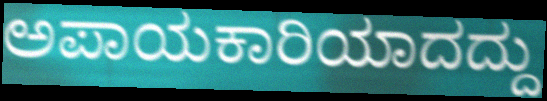
ಅಪಾಯಕಾರಿಯಾದದ್ದು